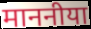
माननीया